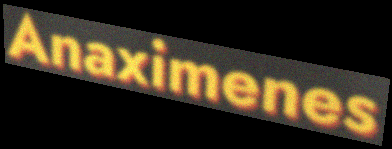
Anaximenes